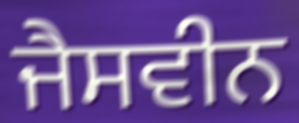
ਜੈਸਵੀਨ